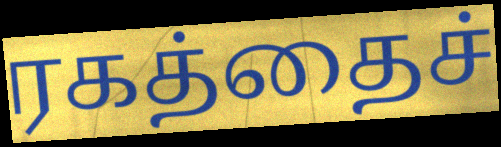
ரகத்தைச்